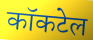
कॉकटेल